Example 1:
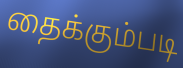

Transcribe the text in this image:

தைக்கும்படி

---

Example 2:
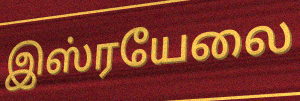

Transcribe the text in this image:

இஸ்ரயேலை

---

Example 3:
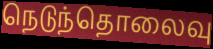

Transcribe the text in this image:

நெடுந்தொலைவு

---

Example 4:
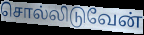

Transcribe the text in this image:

சொல்லிடுவேன்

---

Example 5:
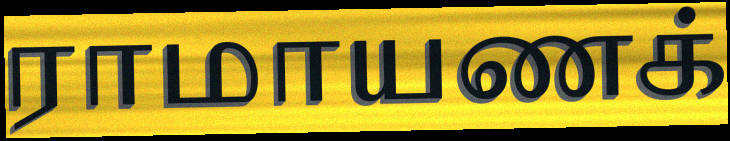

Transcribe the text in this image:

ராமாயணக்